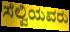
ಸೆಲ್ವಿಯವರು